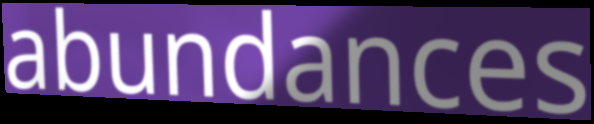
abundances